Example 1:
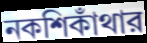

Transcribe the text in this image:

নকশিকাঁথার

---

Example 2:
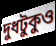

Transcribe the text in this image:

দুধটুকুও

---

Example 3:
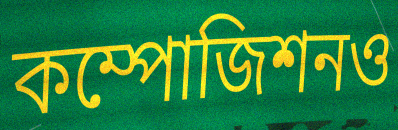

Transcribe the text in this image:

কম্পোজিশনও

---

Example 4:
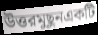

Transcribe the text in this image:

উত্তরমুছুনএকটি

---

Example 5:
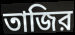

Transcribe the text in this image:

তাজির